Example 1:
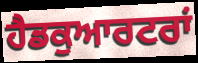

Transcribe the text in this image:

ਹੈਡਕੁਆਰਟਰਾਂ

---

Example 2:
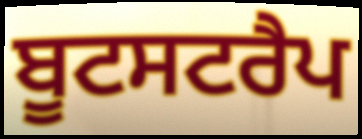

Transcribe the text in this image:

ਬੂਟਸਟਰੈਪ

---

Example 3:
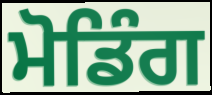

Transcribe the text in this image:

ਮੋਡਿੰਗ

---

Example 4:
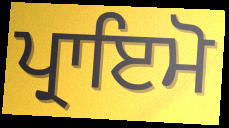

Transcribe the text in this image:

ਪ੍ਰਾਇਮੋ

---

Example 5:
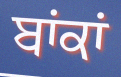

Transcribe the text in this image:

ਬਾਂਕਾਂ